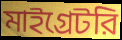
মাইগ্রেটরি